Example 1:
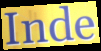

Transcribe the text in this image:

Inde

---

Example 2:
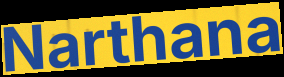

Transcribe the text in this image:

Narthana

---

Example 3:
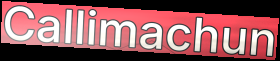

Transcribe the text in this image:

Callimachun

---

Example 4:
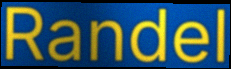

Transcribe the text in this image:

Randel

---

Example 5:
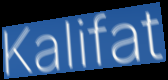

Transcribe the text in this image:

Kalifat